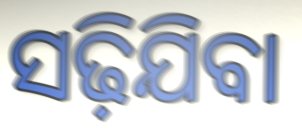
ସଢ଼ିଯିବା